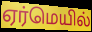
ஏர்மெயில்